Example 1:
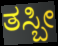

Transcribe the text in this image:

ತಸ್ಬೀ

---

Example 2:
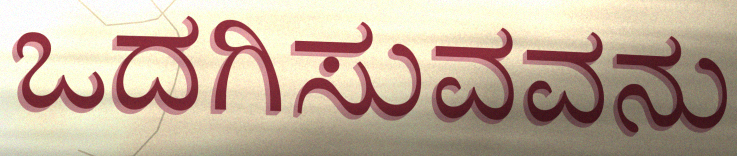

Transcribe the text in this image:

ಒದಗಿಸುವವನು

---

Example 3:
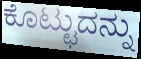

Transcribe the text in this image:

ಕೊಟ್ಟುದನ್ನು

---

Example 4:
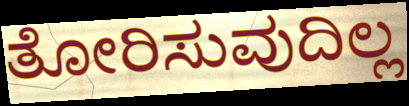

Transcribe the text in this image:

ತೋರಿಸುವುದಿಲ್ಲ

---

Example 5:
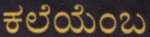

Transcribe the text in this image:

ಕಲೆಯೆಂಬ